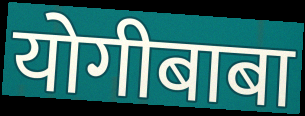
योगीबाबा